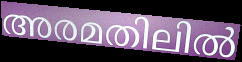
അരമതിലിൽ